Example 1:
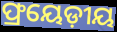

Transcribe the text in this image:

ଫ୍ରୟେଡ଼ୀୟ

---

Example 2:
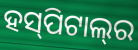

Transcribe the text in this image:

ହସ୍‍ପିଟାଲ୍‍ର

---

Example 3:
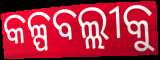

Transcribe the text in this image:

କଳ୍ପବଲ୍ଲୀକୁ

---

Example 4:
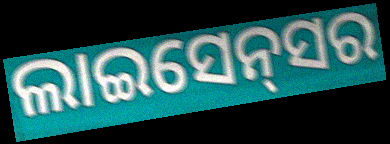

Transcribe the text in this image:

ଲାଇସେନ୍‌ସର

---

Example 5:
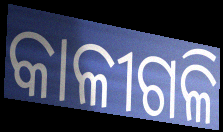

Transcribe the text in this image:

କାଳୀଗଳି